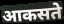
आकसते